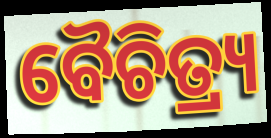
ବୈଚିତ୍ର୍ୟ